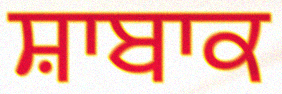
ਸ਼ਾਬਾਕ